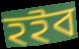
হইব